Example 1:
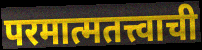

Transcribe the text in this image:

परमात्मतत्त्वाची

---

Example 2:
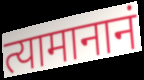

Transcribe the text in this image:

त्यामानानं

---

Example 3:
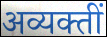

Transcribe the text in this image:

अव्यक्तीं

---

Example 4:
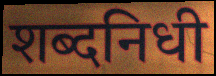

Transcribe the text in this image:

शब्दनिधी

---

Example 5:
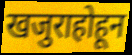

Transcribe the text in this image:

खजुराहोहून